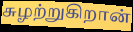
சுழற்றுகிறான்